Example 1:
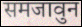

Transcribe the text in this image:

समजावुन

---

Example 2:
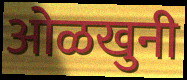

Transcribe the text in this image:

ओळखुनी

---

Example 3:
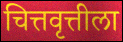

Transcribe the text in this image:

चित्तवृत्तीला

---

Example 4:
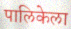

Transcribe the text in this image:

पालिकेला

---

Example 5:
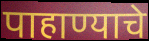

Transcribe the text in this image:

पाहाण्याचे